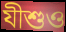
যীশুও